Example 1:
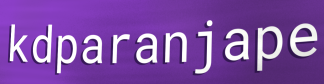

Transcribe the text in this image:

kdparanjape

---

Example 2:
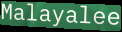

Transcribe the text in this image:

Malayalee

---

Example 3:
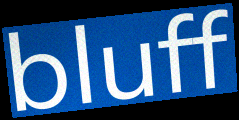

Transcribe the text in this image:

bluff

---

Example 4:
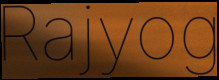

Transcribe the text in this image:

Rajyog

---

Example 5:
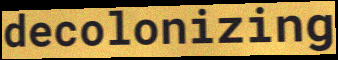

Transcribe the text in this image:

decolonizing